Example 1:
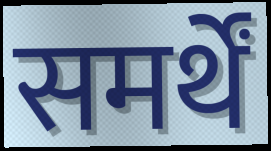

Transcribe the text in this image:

समर्थें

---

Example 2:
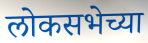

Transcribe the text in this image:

लोकसभेच्या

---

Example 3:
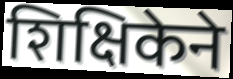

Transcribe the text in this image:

शिक्षिकेने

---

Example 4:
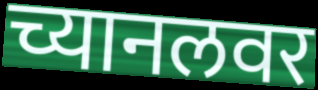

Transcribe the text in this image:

च्यानलवर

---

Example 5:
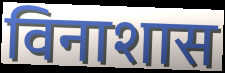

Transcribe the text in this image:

विनाशास